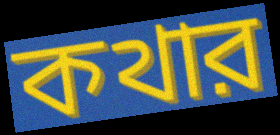
কথার